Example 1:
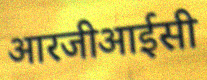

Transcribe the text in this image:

आरजीआईसी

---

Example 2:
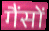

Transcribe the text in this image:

गैंसों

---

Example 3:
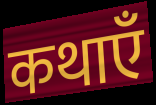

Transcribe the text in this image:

कथाएँ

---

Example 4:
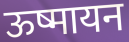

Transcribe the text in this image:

ऊष्मायन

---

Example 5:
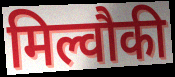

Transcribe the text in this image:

मिल्वौकी